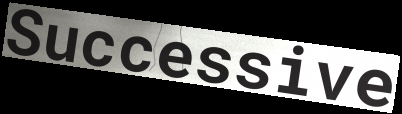
Successive